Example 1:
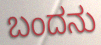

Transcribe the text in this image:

ಬಂದನು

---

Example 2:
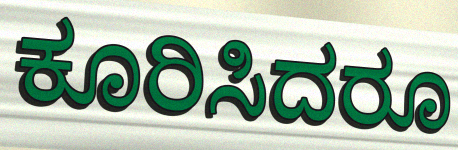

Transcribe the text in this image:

ಕೂರಿಸಿದರೂ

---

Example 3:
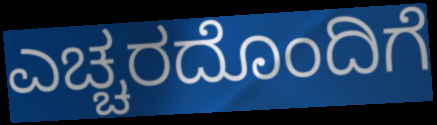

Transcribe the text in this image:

ಎಚ್ಚರದೊಂದಿಗೆ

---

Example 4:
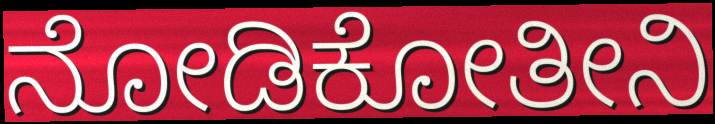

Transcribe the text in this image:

ನೋಡಿಕೋತೀನಿ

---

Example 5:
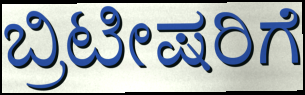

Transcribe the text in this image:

ಬ್ರಿಟೀಷರಿಗೆ